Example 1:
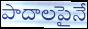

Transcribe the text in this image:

పాదాలపైనే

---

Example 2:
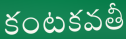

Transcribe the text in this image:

కంటకవతీ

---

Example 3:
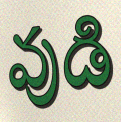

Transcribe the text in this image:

వుడి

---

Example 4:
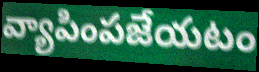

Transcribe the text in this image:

వ్యాపింపజేయటం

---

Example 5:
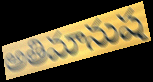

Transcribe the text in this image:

అతిమానుష